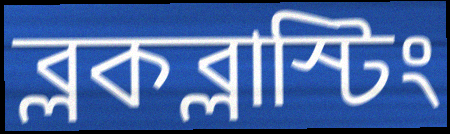
ব্লকব্লাস্টিং